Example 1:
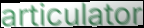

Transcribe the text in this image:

articulator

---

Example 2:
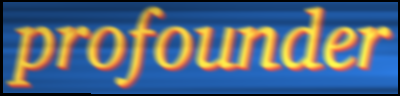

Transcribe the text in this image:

profounder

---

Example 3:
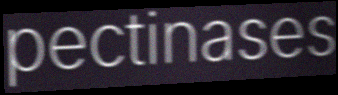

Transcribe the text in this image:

pectinases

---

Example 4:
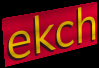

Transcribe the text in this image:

ekch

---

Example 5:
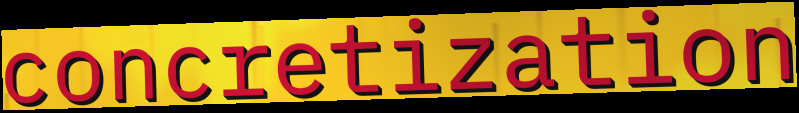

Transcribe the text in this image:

concretization